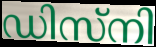
ഡിസ്നി